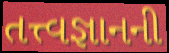
તત્ત્વજ્ઞાનની